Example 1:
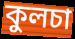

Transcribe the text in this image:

কুলচা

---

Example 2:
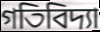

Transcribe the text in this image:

গতিবিদ্যা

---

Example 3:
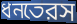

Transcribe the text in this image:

ধনতেরস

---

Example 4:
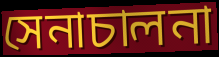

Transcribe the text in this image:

সেনাচালনা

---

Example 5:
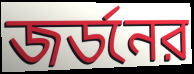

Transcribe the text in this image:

জর্ডনের